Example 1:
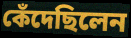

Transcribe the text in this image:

কেঁদেছিলেন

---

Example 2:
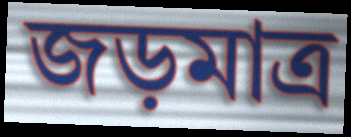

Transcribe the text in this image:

জড়মাত্র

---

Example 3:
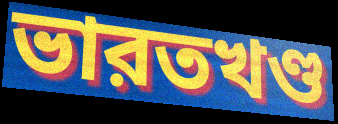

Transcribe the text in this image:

ভারতখণ্ড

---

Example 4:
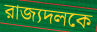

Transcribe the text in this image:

রাজ্যদলকে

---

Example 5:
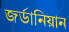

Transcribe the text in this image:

জর্ডানিয়ান